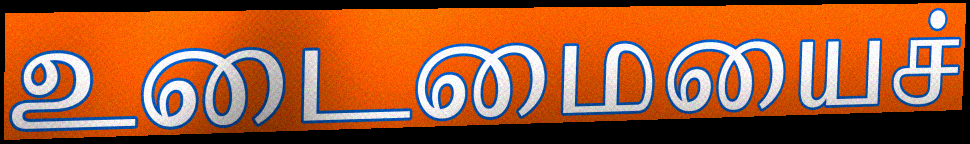
உடைமையைச்